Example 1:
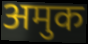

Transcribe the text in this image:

अमुक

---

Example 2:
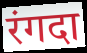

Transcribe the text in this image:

रंगदा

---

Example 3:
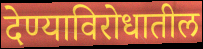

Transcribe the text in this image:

देण्याविरोधातील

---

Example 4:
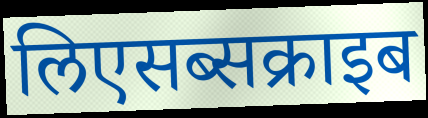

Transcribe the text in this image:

लिएसब्सक्राइब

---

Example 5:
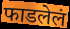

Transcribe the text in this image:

फाडलेलं